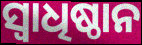
ସ୍ୱାଧିଷ୍ଠାନ